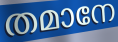
തമാനേ